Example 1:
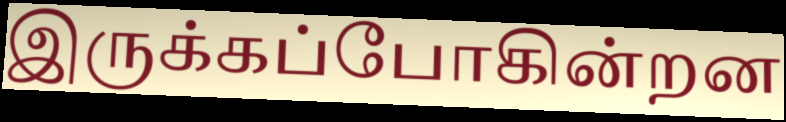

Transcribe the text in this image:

இருக்கப்போகின்றன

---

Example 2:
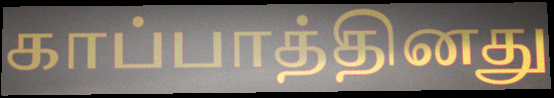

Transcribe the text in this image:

காப்பாத்தினது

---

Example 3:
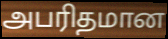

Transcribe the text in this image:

அபரிதமான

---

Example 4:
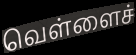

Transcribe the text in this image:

வெள்ளைச்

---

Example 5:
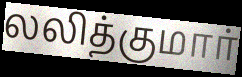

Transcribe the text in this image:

லலித்குமார்